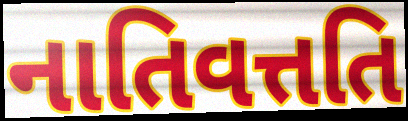
નાતિવત્તતિ